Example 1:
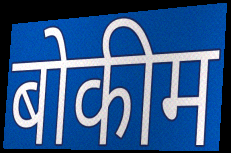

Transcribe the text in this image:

बोकीम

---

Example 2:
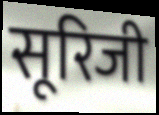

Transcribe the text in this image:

सूरिजी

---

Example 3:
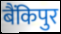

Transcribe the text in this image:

बैंकिपुर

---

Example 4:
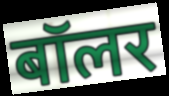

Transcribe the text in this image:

बॉलर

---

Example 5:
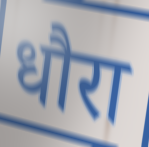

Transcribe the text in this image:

धौरा